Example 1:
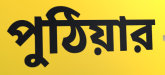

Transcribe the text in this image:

পুঠিয়ার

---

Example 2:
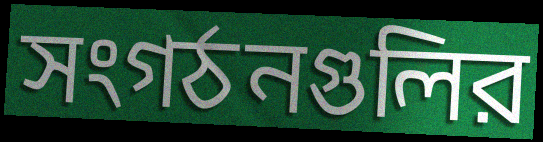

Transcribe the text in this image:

সংগঠনগুলির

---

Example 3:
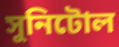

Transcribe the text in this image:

সুনিটোল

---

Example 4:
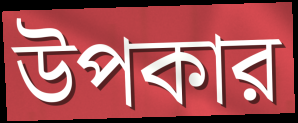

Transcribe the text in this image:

উপকার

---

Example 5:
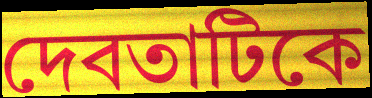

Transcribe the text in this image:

দেবতাটিকে